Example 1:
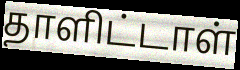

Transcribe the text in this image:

தாளிட்டாள்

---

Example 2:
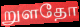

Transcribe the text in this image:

றுளதோ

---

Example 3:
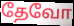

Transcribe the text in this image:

தேவோ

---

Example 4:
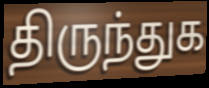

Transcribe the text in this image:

திருந்துக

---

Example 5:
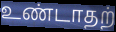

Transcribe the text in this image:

உண்டாதற்